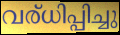
വര്ധിപ്പിച്ചു